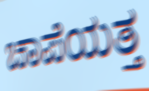
ಚಾಪೆಯತ್ತ